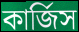
কার্জিস